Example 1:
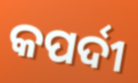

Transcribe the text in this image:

କପର୍ଦୀ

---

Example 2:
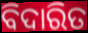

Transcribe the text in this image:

ବିଦାରିତ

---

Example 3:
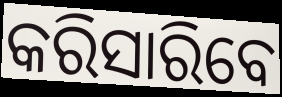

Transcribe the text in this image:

କରିସାରିବେ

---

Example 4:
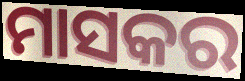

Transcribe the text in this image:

ମାସକର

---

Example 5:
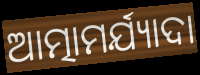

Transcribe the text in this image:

ଆତ୍ମାମର୍ଯ୍ୟାଦା